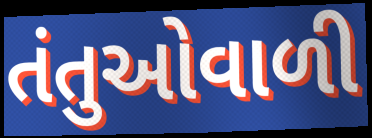
તંતુઓવાળી